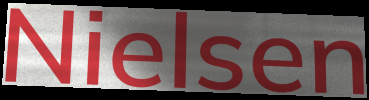
Nielsen